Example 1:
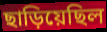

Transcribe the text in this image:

ছাড়িয়েছিল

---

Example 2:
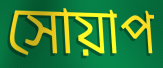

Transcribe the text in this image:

সোয়াপ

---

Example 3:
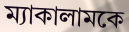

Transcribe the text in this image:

ম্যাকালামকে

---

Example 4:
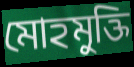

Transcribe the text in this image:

মোহমুক্তি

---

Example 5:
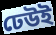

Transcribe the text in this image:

ঢেউই